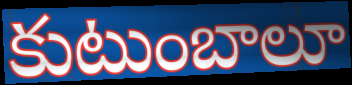
కుటుంబాలూ